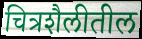
चित्रशैलीतील